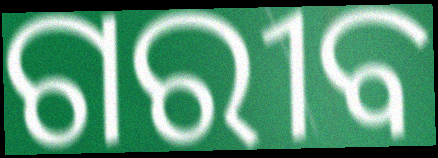
ଗରୀବ